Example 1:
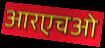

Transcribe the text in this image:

आरएचओ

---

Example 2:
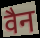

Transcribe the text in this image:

वैन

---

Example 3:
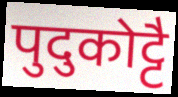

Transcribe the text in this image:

पुदुकोट्टै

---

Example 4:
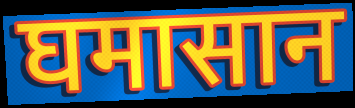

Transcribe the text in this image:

घमासान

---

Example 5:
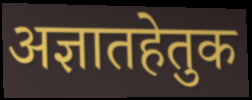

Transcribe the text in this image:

अज्ञातहेतुक